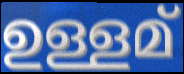
ഉള്ളമ്